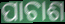
ପାଚାଶ